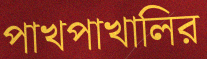
পাখপাখালির